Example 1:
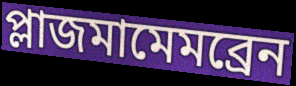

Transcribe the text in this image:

প্লাজমামেমব্রেন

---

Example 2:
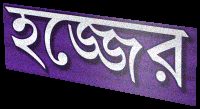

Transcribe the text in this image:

হজ্জের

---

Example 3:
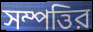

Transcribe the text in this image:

সম্পত্তির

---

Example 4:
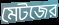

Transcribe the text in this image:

মেটজের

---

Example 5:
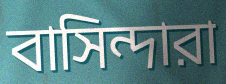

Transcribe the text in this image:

বাসিন্দারা